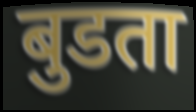
बुडता